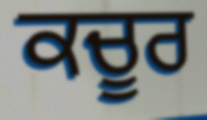
ਕਚੂਰ